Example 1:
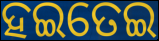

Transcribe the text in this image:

ହଇତେଇ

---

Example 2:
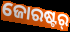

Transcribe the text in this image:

ଜୋରଷ୍ଟର୍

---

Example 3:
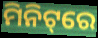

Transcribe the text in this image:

ମିନିଟ୍‌ରେ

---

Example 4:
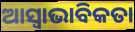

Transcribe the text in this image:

ଆସ୍ବାଭାବିକତା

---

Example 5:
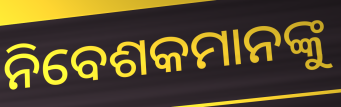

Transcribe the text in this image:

ନିବେଶକମାନଙ୍କୁ